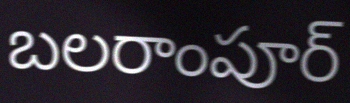
బలరాంపూర్